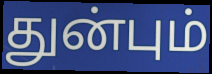
துன்பும்